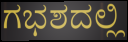
ಗಭಶದಲ್ಲಿ